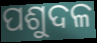
ପଶୁଦଳ